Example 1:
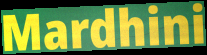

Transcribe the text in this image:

Mardhini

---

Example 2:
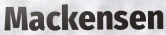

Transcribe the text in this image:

Mackensen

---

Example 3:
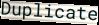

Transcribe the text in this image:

Duplicate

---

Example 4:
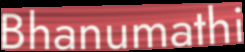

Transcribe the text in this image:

Bhanumathi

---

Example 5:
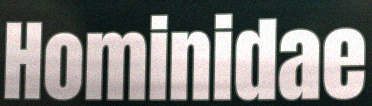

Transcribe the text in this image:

Hominidae